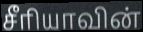
சீரியாவின்